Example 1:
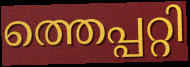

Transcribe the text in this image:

ത്തെപ്പറ്റി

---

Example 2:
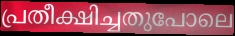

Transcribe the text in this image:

പ്രതീക്ഷിച്ചതുപോലെ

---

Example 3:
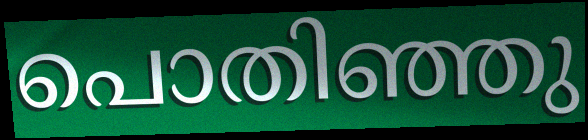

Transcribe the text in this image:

പൊതിഞ്ഞു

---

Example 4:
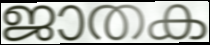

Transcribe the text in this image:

ജാതക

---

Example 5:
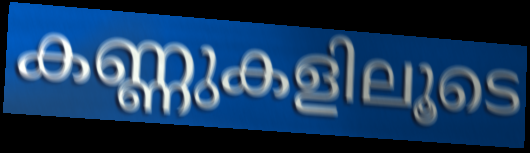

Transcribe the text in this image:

കണ്ണുകളിലൂടെ